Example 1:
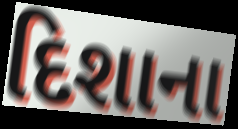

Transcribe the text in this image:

દિશાના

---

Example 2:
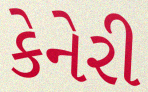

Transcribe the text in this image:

કેનેરી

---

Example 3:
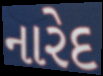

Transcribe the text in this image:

નારેદ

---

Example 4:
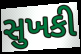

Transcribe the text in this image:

સુખકી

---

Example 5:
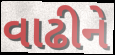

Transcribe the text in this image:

વાઢીને